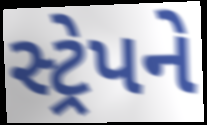
સ્ટ્રેપને